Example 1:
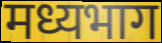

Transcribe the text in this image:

मध्यभाग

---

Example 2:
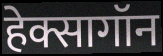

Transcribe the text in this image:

हेक्सागॉन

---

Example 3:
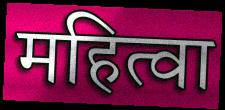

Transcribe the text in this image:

महित्वा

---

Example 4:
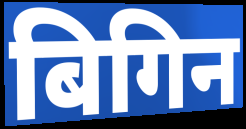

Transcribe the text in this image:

बिगिन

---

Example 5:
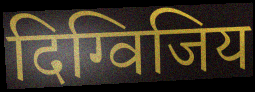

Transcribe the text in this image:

दिग्विजिय